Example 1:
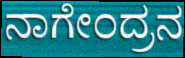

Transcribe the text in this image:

ನಾಗೇಂದ್ರನ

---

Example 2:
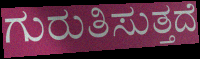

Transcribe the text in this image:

ಗುರುತಿಸುತ್ತದೆ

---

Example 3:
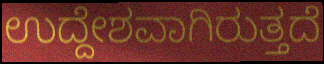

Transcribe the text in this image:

ಉದ್ದೇಶವಾಗಿರುತ್ತದೆ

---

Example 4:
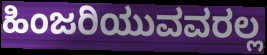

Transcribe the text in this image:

ಹಿಂಜರಿಯುವವರಲ್ಲ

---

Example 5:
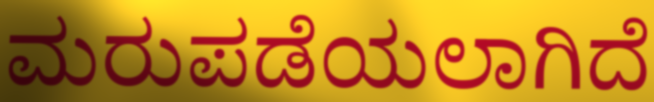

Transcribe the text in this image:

ಮರುಪಡೆಯಲಾಗಿದೆ